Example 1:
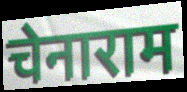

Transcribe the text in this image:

चेनाराम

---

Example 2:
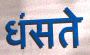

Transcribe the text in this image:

धंसते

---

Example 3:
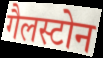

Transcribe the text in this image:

गैलस्टोन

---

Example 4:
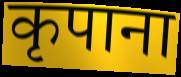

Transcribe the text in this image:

कृपाना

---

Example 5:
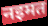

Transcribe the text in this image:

नइमत